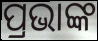
ପ୍ରଭାଙ୍କ